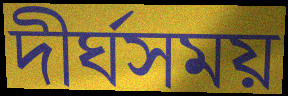
দীর্ঘসময়